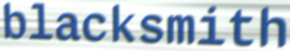
blacksmith